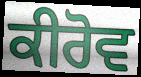
ਕੀਰੋਵ